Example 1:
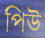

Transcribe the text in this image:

পিউ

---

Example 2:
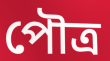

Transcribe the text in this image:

পৌত্র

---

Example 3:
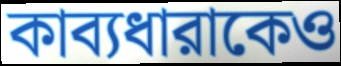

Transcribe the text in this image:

কাব্যধারাকেও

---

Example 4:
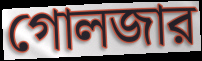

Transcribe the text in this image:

গোলজার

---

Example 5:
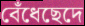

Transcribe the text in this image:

বেঁধেছেদে